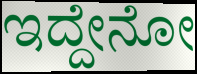
ಇದ್ದೇನೋ